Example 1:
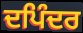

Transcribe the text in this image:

ਦਪਿੰਦਰ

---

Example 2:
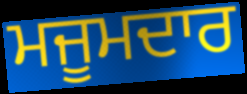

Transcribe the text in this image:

ਮਜੂਮਦਾਰ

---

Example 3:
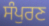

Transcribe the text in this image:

ਸੰਪੁਰਣ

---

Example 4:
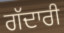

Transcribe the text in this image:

ਗੱਦਾਰੀ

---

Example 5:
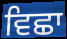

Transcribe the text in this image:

ਵਿਛਾ